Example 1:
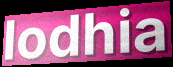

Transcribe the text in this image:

lodhia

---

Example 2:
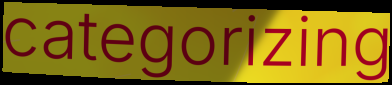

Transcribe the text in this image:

categorizing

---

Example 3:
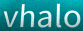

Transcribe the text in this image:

vhalo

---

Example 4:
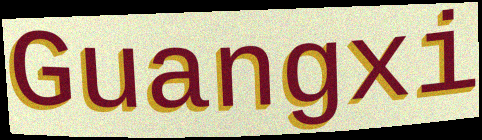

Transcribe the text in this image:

Guangxi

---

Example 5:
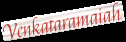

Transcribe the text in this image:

Venkataramaiah